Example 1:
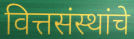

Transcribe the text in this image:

वित्तसंस्थांचे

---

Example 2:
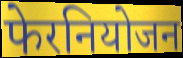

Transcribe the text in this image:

फेरनियोजन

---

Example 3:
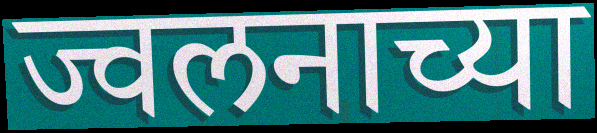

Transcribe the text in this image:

ज्वलनाच्या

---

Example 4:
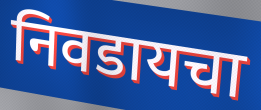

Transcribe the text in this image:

निवडायचा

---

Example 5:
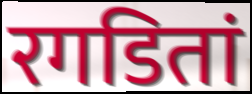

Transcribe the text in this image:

रगडितां